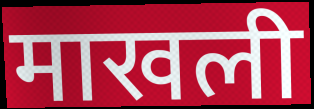
माखली